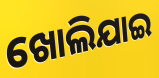
ଖୋଲିଯାଇ